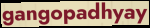
gangopadhyay